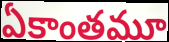
ఏకాంతమూ